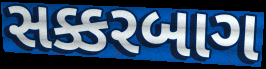
સક્કરબાગ